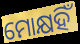
ମୋକ୍ଷହିଁ